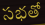
సభతో